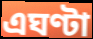
এঘণ্টা